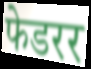
फेडरर